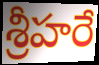
శ్రీహరే